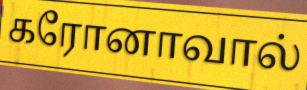
கரோனாவால்